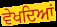
ਵੇਖਦਿਆਂ